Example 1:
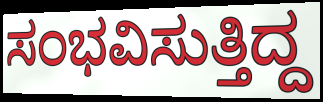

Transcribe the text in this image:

ಸಂಭವಿಸುತ್ತಿದ್ದ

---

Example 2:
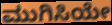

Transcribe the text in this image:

ಮುಗಿಸಿಯೇ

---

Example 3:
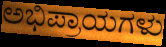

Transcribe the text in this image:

ಅಭಿಪ್ರಾಯಗಳು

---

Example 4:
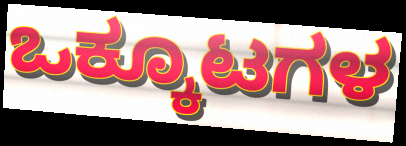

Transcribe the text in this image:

ಒಕ್ಕೂಟಗಳ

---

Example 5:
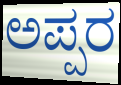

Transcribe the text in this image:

ಅಪ್ಪರ